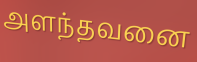
அளந்தவனை